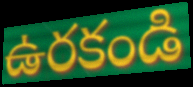
ఉరకండి